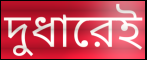
দুধারেই